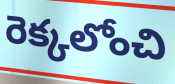
రెక్కలోంచి